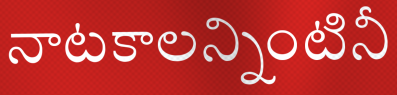
నాటకాలన్నింటినీ